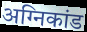
अग्‍निकांड